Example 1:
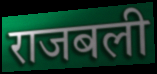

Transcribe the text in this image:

राजबली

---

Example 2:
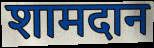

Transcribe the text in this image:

शामदान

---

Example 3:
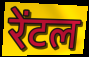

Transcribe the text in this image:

रेंटल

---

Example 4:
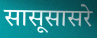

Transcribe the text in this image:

सासूसासरे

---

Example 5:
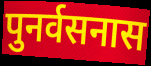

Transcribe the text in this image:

पुनर्वसनास